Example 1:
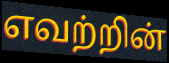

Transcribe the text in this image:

எவற்றின்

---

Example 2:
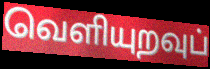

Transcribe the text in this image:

வெளியுறவுப்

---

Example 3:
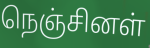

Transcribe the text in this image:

நெஞ்சினள்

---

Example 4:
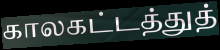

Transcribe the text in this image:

காலகட்டத்துத்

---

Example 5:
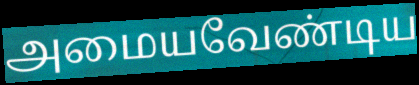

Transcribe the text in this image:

அமையவேண்டிய